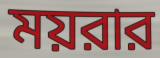
ময়রার